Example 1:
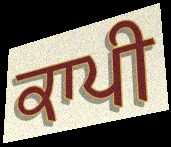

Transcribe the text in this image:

ਕਾਪੀ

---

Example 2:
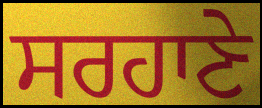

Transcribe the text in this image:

ਸਰਹਾਣੇ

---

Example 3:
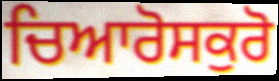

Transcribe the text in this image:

ਚਿਆਰੋਸਕੁਰੋ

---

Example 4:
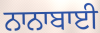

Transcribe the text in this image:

ਨਾਨਾਬਾਈ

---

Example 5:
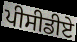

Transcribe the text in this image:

ਪੀਸੀਡੀਏ